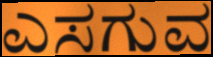
ಎಸಗುವ